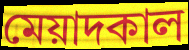
মেয়াদকাল